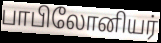
பாபிலோனியர்